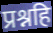
प्रश्नहि